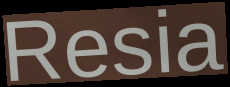
Resia